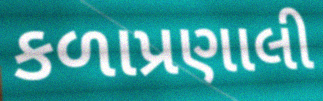
કળાપ્રણાલી